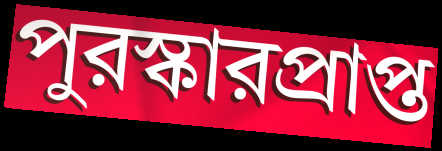
পুরস্কারপ্রাপ্ত